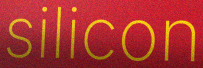
silicon